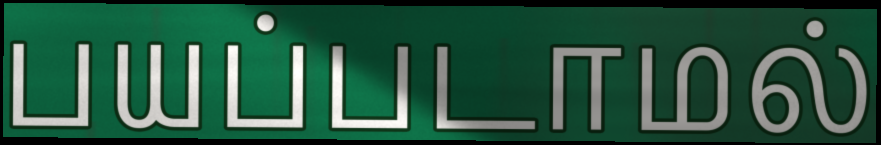
பயப்படாமல்